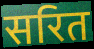
सरित